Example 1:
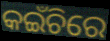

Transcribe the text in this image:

କଇଁଚିରେ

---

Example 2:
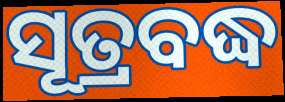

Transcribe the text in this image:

ସୂତ୍ରବଦ୍ଧ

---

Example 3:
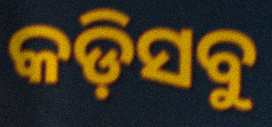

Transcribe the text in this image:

କଡ଼ିସବୁ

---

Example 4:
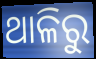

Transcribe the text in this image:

ଥାଳିରୁ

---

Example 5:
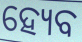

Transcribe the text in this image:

ହ୍ୟେବ